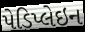
પેડિપ્લેઇન